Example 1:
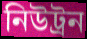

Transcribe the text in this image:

নিউট্রন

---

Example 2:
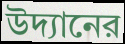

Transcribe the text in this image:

উদ্যানের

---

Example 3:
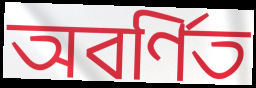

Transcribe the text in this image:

অবর্ণিত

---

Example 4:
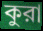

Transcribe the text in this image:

কুরা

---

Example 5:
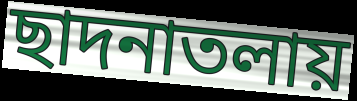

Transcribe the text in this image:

ছাদনাতলায়